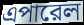
এপারেল